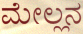
ಮೇಲ್ಲನ